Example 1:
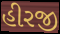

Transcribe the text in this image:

હીરજી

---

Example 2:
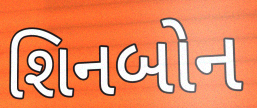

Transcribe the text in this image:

શિનબોન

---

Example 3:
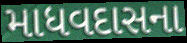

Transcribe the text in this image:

માધવદાસના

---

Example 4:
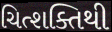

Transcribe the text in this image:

ચિત્શક્તિથી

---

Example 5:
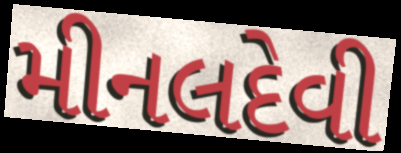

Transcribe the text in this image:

મીનલદેવી